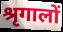
श्रृगालों